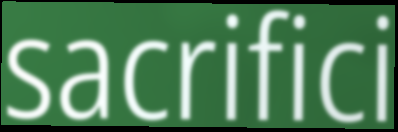
sacrifici